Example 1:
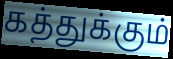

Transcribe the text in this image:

கத்துக்கும்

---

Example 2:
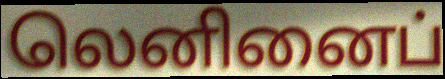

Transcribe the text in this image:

லெனினைப்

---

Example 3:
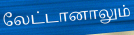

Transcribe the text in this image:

லேட்டானாலும்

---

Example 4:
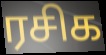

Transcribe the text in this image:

ரசிக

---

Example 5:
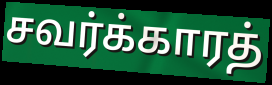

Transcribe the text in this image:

சவர்க்காரத்